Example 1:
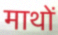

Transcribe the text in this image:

माथों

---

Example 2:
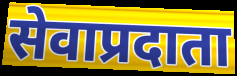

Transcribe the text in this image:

सेवाप्रदाता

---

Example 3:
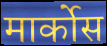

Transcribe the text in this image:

मार्कोस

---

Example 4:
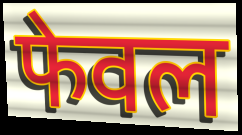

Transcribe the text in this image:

फेवल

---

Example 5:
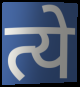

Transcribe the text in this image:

त्ये